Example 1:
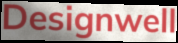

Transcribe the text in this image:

Designwell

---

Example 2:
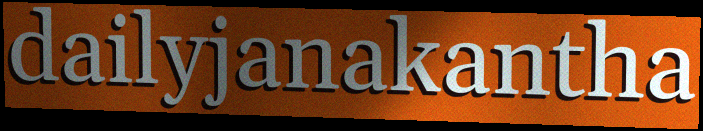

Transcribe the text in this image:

dailyjanakantha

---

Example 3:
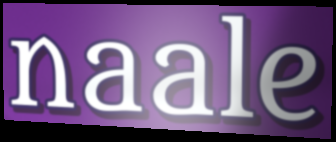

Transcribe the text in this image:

naale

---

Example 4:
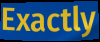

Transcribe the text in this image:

Exactly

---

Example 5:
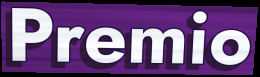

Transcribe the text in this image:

Premio